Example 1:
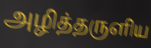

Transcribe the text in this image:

அழித்தருளிய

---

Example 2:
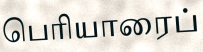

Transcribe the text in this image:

பெரியாரைப்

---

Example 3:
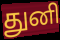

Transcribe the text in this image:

துனி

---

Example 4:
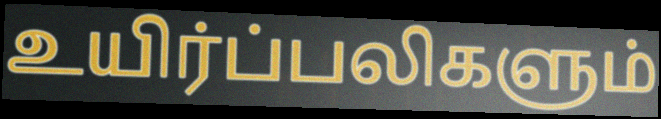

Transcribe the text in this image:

உயிர்ப்பலிகளும்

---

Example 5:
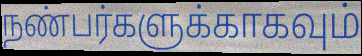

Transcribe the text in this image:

நண்பர்களுக்காகவும்